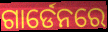
ଗାର୍ଡେନରେ